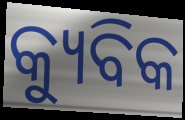
କ୍ୟୁବିକ